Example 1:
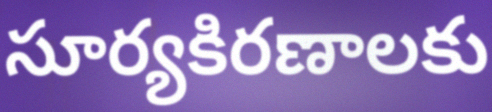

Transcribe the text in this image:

సూర్యకిరణాలకు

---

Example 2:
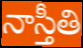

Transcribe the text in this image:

నాస్తీతి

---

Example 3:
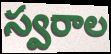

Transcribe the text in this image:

స్వరాల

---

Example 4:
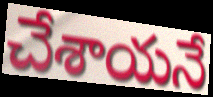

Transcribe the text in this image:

చేశాయనే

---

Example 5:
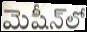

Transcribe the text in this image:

మెషీన్‌లో